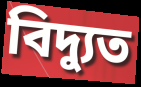
বিদ্যুত